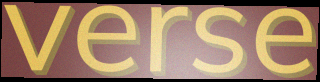
verse